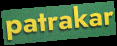
patrakar